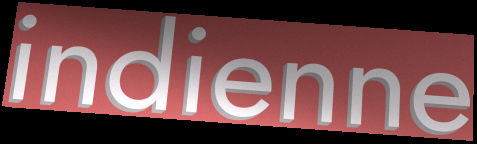
indienne